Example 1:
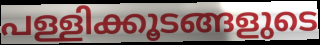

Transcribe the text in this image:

പള്ളിക്കൂടങ്ങളുടെ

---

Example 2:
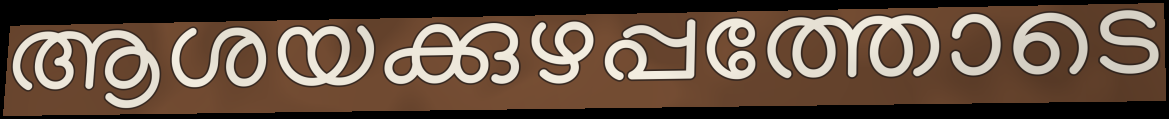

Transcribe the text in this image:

ആശയക്കുഴപ്പത്തോടെ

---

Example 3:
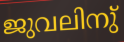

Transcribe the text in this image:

ജുവലിനു്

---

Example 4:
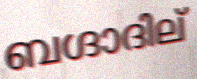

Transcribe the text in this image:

ബഗ്ദാദില്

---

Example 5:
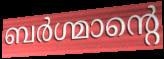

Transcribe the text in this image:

ബർഗ്മാന്റെ